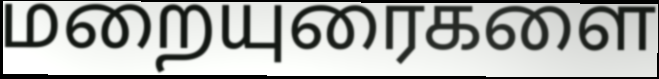
மறையுரைகளை